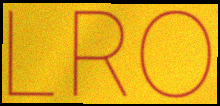
LRO